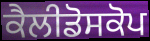
ਕੈਲੀਡੋਸਕੋਪ